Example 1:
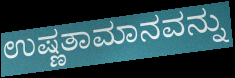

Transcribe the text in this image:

ಉಷ್ಣತಾಮಾನವನ್ನು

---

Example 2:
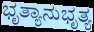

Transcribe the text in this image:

ಭೃತ್ಯಾನುಭೃತ್ಯ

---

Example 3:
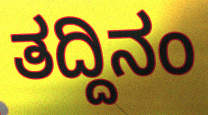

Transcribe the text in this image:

ತದ್ದಿನಂ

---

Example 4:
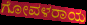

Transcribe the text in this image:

ಗೋವಳರಾಯ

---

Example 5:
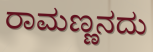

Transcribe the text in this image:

ರಾಮಣ್ಣನದು